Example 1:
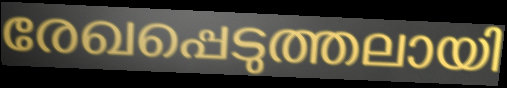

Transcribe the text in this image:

രേഖപ്പെടുത്തലായി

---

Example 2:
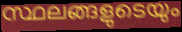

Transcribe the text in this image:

സ്ഥലങ്ങളുടെയും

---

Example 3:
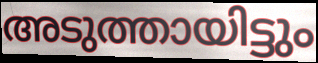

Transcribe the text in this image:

അടുത്തായിട്ടും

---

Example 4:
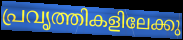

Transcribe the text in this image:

പ്രവൃത്തികളിലേക്കു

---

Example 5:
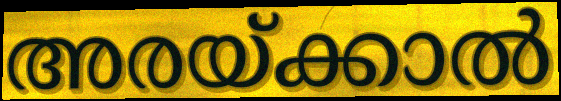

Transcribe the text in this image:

അരയ്ക്കാൽ